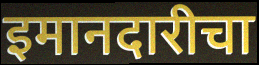
इमानदारीचा